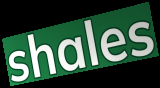
shales